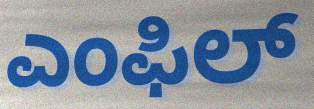
ಎಂಫಿಲ್